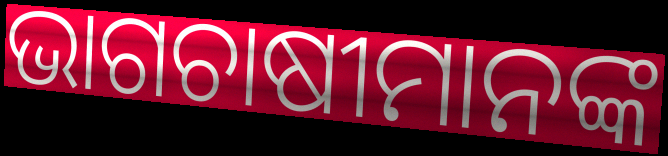
ଭାଗଚାଷୀମାନଙ୍କ